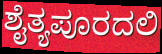
ಶೈತ್ಯಪೂರದಲಿ